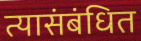
त्यासंबंधित